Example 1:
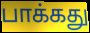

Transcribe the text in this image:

பாக்கது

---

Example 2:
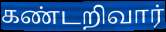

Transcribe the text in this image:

கண்டறிவார்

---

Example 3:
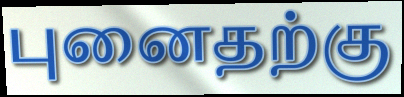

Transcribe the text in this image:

புனைதற்கு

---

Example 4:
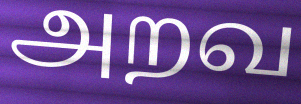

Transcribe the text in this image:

அறவ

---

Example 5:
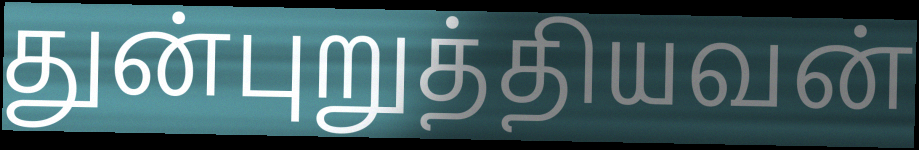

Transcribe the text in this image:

துன்புறுத்தியவன்